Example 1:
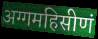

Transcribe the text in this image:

अग्गमहिसीणं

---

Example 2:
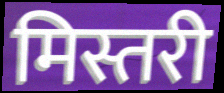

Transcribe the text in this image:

मिस्तरी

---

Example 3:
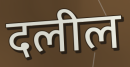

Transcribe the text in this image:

दलील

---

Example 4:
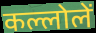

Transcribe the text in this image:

कल्लोलें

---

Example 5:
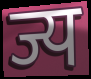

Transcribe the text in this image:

ज्य